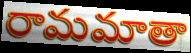
రామమాతా